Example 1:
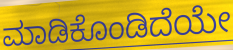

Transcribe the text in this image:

ಮಾಡಿಕೊಂಡಿದೆಯೇ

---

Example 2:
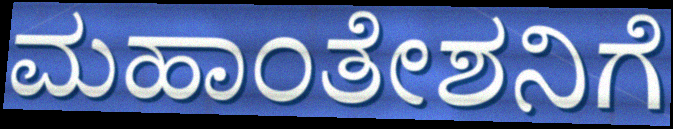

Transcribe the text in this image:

ಮಹಾಂತೇಶನಿಗೆ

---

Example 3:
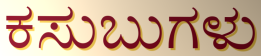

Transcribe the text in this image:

ಕಸುಬುಗಳು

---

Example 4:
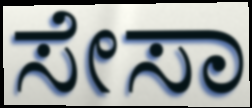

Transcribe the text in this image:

ಸೇಸಾ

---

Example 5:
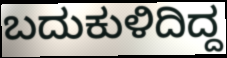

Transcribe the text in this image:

ಬದುಕುಳಿದಿದ್ದ